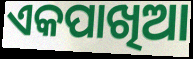
ଏକପାଖିଆ